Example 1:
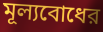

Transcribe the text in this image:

মূল্যবোধের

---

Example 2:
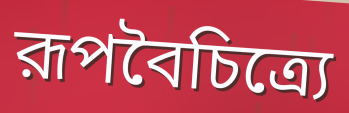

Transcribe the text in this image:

রূপবৈচিত্র্যে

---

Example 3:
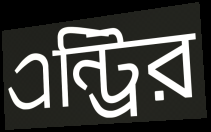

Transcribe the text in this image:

এন্ট্রির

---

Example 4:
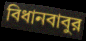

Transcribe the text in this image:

বিধানবাবুর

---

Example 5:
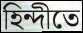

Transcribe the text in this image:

হিন্দীতে